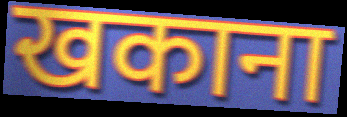
खकाना